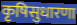
कृषिसुधारणा